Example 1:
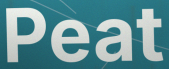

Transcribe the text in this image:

Peat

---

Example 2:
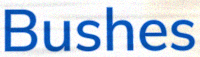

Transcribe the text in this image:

Bushes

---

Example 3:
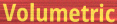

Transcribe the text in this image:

Volumetric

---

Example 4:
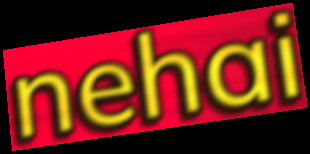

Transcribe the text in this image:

nehai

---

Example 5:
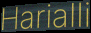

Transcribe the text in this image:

Harialli